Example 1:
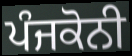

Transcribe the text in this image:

ਪੰਜਕੋਨੀ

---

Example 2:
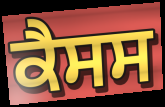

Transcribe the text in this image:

ਕੈਸਸ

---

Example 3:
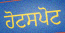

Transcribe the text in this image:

ਹੋਟਸਪੋਟ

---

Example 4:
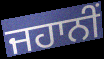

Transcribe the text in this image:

ਜਹਾਨੀਂ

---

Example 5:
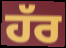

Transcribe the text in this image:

ਹੱਰ